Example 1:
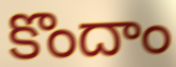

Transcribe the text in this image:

కొందాం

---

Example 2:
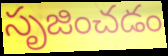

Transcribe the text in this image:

సృజించడం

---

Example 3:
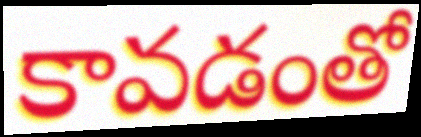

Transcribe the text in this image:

కావడంతో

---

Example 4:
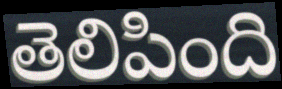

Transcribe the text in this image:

తెలిపింది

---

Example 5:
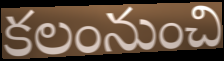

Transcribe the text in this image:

కలంనుంచి